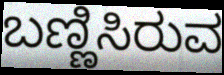
ಬಣ್ಣಿಸಿರುವ